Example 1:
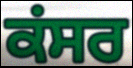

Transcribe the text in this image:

ਕਂਸਰ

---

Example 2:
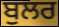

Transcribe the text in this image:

ਬੁਲਰ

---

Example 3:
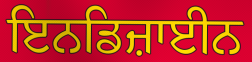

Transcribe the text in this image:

ਇਨਡਿਜ਼ਾਈਨ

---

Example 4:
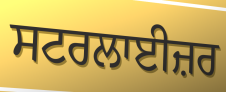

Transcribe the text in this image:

ਸਟਰਲਾਈਜ਼ਰ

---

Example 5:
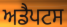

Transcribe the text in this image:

ਅਡੈਪਟਸ